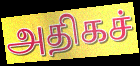
அதிகச்